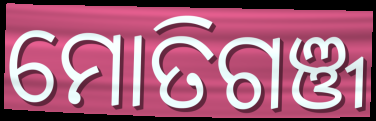
ମୋତିଗଞ୍ଜ